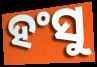
ହଂସୁ